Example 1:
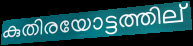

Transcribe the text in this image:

കുതിരയോട്ടത്തില്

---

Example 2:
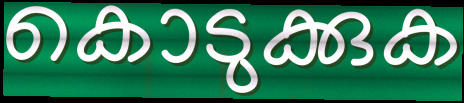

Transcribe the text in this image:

കൊടുക്കുക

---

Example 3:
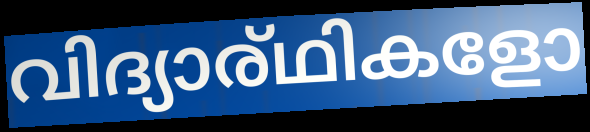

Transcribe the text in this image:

വിദ്യാര്ഥികളോ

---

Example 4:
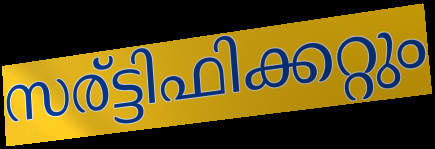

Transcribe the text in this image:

സര്ട്ടിഫിക്കറ്റും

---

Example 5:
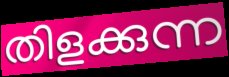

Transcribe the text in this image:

തിളക്കുന്ന